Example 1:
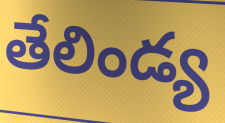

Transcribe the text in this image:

తేలిండ్య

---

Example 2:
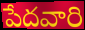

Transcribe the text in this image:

పేదవారి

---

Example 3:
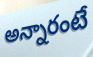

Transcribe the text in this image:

అన్నారంటే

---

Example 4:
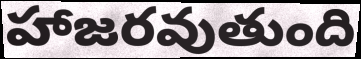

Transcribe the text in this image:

హాజరవుతుంది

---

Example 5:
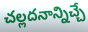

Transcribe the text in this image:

చల్లదనాన్నిచ్చే